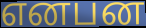
எனபன